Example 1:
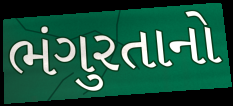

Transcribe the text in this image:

ભંગુરતાનો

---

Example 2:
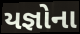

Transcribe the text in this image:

યજ્ઞોના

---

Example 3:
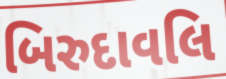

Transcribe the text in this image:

બિરુદાવલિ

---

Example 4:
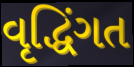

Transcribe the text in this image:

વૃદ્ધિંગત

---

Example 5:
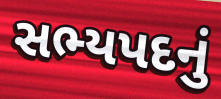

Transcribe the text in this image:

સભ્યપદનું